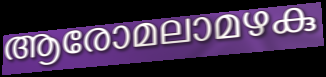
ആരോമലാമഴകു